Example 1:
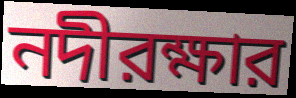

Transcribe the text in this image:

নদীরক্ষার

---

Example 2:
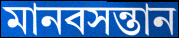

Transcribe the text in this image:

মানবসন্তান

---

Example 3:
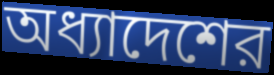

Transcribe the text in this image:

অধ্যাদেশের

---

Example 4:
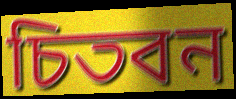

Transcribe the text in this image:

চিতবন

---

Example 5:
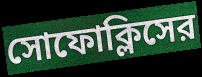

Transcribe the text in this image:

সোফোক্লিসের